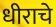
धीराचे